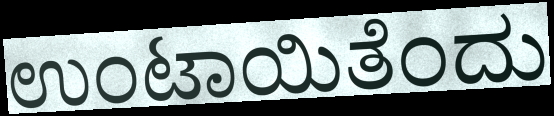
ಉಂಟಾಯಿತೆಂದು